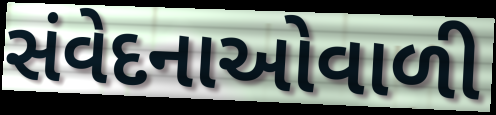
સંવેદનાઓવાળી